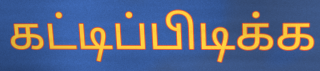
கட்டிப்பிடிக்க